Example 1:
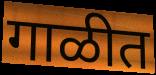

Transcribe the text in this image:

गाळीत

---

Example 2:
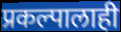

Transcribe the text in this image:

प्रकल्पालाही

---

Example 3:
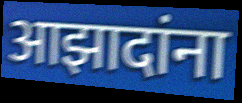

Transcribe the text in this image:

आझादांना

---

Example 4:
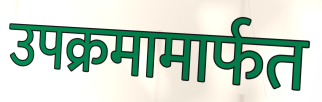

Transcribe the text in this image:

उपक्रमामार्फत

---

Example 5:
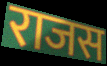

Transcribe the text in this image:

राजस